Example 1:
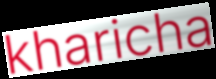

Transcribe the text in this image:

kharicha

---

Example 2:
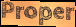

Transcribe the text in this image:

Proper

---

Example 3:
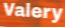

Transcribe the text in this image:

Valery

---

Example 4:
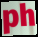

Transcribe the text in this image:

ph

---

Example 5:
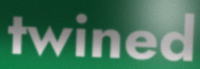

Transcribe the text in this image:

twined